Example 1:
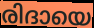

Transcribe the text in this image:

രിദായെ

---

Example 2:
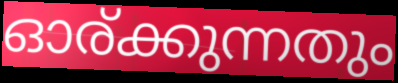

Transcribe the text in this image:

ഓര്ക്കുന്നതും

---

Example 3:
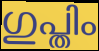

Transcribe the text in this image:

ഗുപ്തിം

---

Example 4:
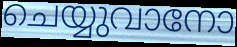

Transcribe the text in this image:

ചെയ്യുവാനോ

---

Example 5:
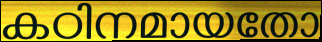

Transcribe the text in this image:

കഠിനമായതോ